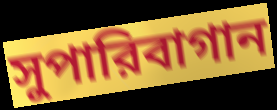
সুপারিবাগান